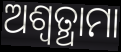
ଅଶ୍ଵତ୍ଥାମା